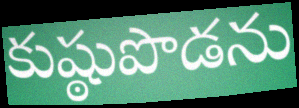
కుష్ఠుపొడను